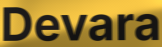
Devara